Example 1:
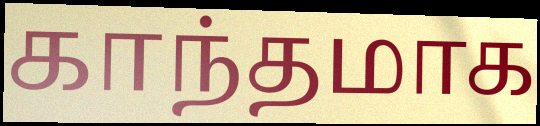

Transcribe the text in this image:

காந்தமாக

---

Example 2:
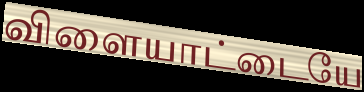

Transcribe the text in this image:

விளையாட்டையே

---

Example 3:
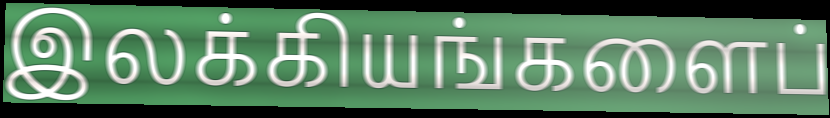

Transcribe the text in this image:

இலக்கியங்களைப்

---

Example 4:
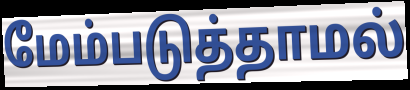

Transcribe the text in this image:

மேம்படுத்தாமல்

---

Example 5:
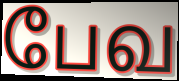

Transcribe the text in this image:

பேவ